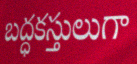
బద్ధకస్తులుగా